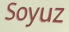
Soyuz